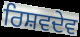
ਰਿਸ਼ਵਦੇਵ